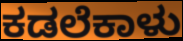
ಕಡಲೆಕಾಳು